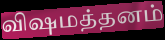
விஷமத்தனம்